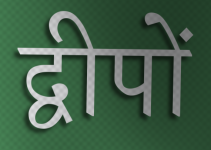
द्वीपों